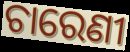
ଚାରେଣୀ